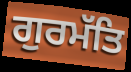
ਗੁਰਮੱਤਿ